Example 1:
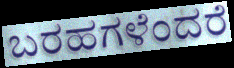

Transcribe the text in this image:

ಬರಹಗಳೆಂದರೆ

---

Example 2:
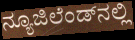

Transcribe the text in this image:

ನ್ಯೂಜಿಲೆಂಡ್‌ನಲ್ಲಿ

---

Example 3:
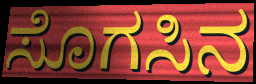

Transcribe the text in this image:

ಸೊಗಸಿನ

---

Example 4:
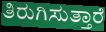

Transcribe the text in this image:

ತಿರುಗಿಸುತ್ತಾರೆ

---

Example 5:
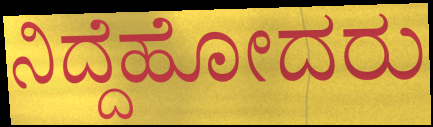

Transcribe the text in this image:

ನಿದ್ದೆಹೋದರು